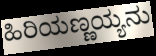
ಹಿರಿಯಣ್ಣಯ್ಯನು